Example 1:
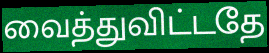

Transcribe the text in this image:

வைத்துவிட்டதே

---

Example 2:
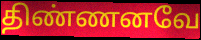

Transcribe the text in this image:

திண்ணனவே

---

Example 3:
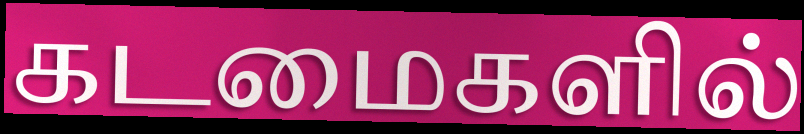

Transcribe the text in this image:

கடமைகளில்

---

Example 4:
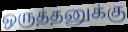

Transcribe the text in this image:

ஒருத்தனுக்கு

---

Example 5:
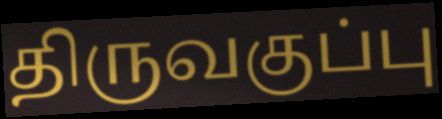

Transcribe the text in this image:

திருவகுப்பு